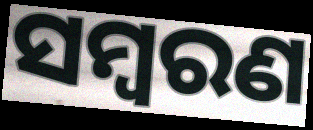
ସମ୍ୱରଣ